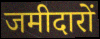
जमीदारों